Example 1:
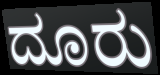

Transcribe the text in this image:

ದೂರು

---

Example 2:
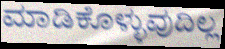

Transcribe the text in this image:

ಮಾಡಿಕೊಳ್ಳುವುದಿಲ್ಲ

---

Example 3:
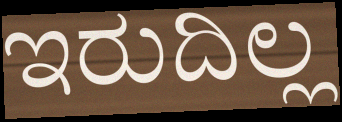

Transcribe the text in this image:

ಇರುದಿಲ್ಲ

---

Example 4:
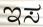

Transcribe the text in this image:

ಇಸ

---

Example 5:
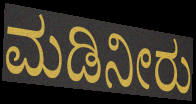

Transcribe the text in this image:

ಮಡಿನೀರು